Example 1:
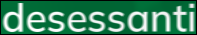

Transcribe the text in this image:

desessanti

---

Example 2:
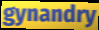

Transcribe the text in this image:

gynandry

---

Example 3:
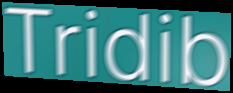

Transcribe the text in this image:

Tridib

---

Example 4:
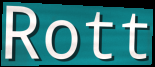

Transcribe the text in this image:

Rott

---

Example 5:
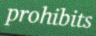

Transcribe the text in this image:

prohibits